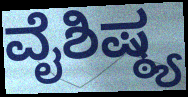
ವೈಶಿಷ್ಠ್ಯ